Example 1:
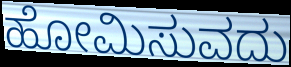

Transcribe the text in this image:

ಹೋಮಿಸುವದು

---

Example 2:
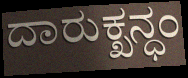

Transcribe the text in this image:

ದಾರುಕ್ಖನ್ಧಂ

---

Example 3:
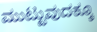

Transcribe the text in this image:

ಮುಟ್ಟುವುದಕ್ಕೂ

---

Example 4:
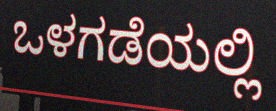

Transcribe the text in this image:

ಒಳಗಡೆಯಲ್ಲಿ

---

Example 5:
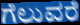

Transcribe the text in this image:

ಗೆಲುವರೆ